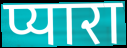
प्यारा